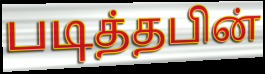
படித்தபின்